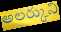
అలర్కుని